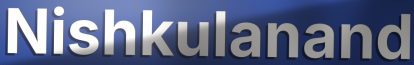
Nishkulanand